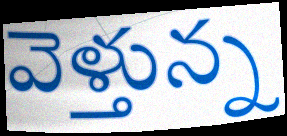
వెళ్తున్న